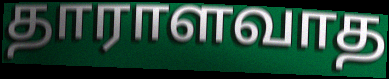
தாராளவாத